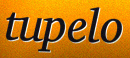
tupelo